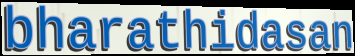
bharathidasan